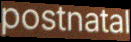
postnatal